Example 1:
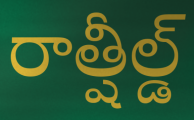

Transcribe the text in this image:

రాత్షీల్డ్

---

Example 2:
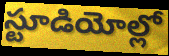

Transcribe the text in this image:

స్టూడియోల్లో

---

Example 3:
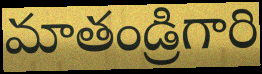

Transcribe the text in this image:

మాతండ్రిగారి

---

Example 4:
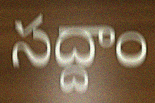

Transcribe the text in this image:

సద్దాం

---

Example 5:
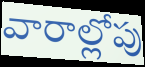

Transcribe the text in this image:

వారాల్లోపు